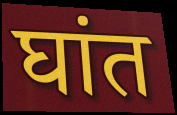
घांत